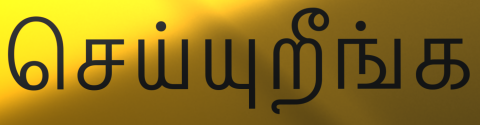
செய்யுறீங்க